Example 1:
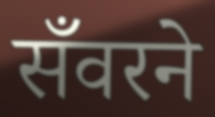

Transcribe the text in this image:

सँवरने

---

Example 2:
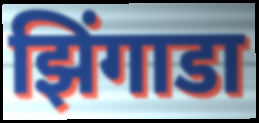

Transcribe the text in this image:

झिंगाडा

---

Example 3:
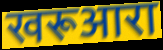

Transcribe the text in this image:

खरूआरा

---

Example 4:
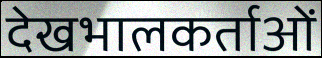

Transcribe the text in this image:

देखभालकर्ताओं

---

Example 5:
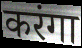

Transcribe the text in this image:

करंगा